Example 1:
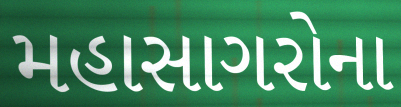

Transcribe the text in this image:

મહાસાગરોના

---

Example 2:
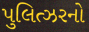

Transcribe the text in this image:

પુલિત્ઝરનો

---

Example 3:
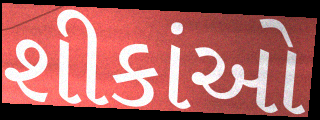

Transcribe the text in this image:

શીકાંઓ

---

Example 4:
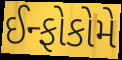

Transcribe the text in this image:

ઈન્ફોકોમે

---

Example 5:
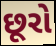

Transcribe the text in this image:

છૂરો